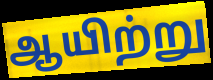
ஆயிற்று